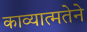
काव्यात्मतेने